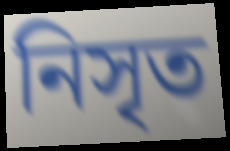
নিসৃত